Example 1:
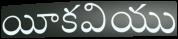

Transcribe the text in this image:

యీకవియు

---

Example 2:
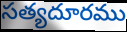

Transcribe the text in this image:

సత్యదూరము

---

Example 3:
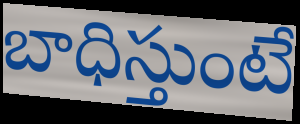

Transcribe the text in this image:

బాధిస్తుంటే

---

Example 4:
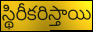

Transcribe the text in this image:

స్థిరీకరిస్తాయి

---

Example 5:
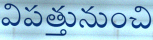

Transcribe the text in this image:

విపత్తునుంచి